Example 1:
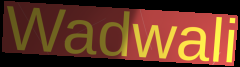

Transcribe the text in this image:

Wadwali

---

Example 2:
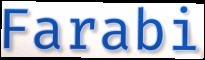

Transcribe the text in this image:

Farabi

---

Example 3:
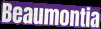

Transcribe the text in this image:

Beaumontia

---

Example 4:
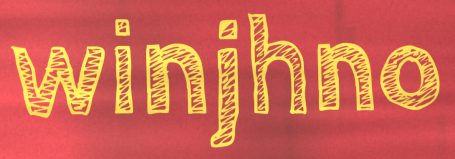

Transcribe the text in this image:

winjhno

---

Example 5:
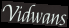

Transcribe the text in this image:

Vidwans